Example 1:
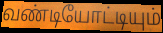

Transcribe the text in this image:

வண்டியோட்டியும்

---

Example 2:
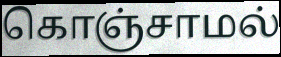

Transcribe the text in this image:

கொஞ்சாமல்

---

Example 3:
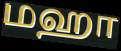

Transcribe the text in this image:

மஹா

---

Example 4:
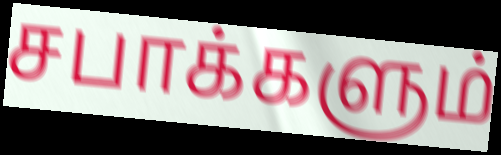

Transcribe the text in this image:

சபாக்களும்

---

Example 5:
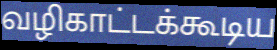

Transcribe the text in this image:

வழிகாட்டக்கூடிய